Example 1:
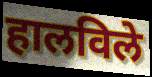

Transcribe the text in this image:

हालविले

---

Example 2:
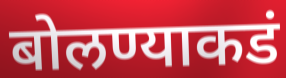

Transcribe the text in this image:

बोलण्याकडं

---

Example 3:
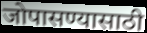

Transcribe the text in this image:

जोपासण्यासाठी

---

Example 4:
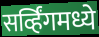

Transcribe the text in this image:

सर्व्हिंगमध्ये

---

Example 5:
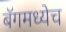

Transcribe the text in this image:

बॅगमध्येच